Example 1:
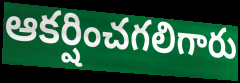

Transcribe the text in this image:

ఆకర్షించగలిగారు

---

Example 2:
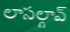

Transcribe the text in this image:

లాసల్గావ్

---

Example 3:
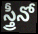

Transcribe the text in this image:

స్త్రీనో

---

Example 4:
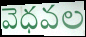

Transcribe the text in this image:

వెధవల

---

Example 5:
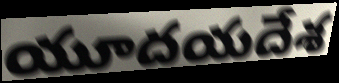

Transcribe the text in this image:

యూదయదేశ